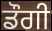
ਡੌਗੀ